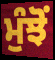
ਮੁੰਝੋਂ